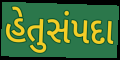
હેતુસંપદા